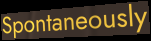
Spontaneously